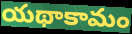
యథాకామం